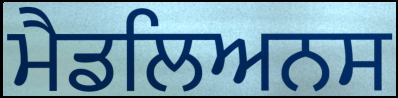
ਮੈਡਲਿਅਨਸ